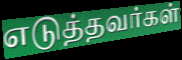
எடுத்தவர்கள்